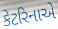
કેટરિનાએ